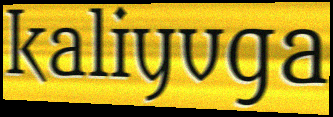
kaliyuga